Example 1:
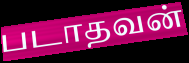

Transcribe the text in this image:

படாதவன்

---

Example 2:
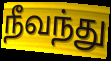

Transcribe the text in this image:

நீவந்து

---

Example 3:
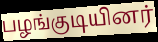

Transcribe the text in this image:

பழங்குடியினர்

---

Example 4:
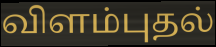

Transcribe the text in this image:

விளம்புதல்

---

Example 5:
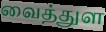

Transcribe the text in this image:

வைத்துள